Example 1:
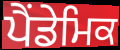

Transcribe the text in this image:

ਪੈਂਡੇਮਿਕ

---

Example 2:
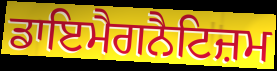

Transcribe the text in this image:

ਡਾਇਮੈਗਨੈਟਿਜ਼ਮ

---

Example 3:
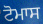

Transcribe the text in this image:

ਟੋਮਾਸ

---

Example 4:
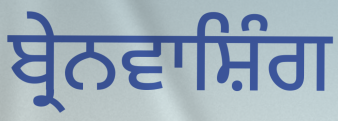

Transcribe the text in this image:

ਬ੍ਰੇਨਵਾਸ਼ਿੰਗ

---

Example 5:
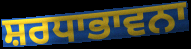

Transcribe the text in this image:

ਸ਼ਰਧਾਭਾਵਨਾ